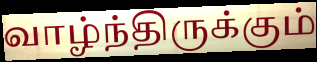
வாழ்ந்திருக்கும்